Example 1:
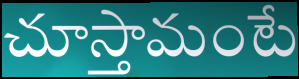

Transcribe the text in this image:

చూస్తామంటే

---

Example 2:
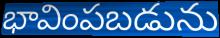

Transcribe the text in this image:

భావింపబడును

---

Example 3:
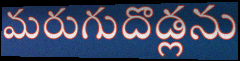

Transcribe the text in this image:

మరుగుదొడ్లను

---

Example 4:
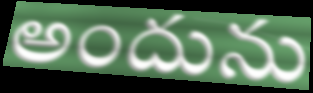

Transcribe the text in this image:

అందును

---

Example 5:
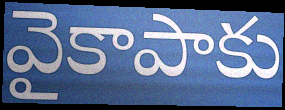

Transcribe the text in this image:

వైకాపాకు